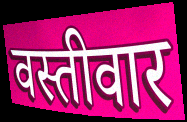
वस्तीवार